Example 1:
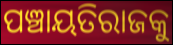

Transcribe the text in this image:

ପଞ୍ଚାୟତିରାଜକୁ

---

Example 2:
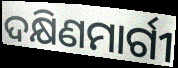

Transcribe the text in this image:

ଦକ୍ଷିଣମାର୍ଗୀ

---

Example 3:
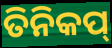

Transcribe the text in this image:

ତିନିକପ୍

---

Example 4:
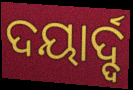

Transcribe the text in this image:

ଦୟାର୍ଦ୍ଦ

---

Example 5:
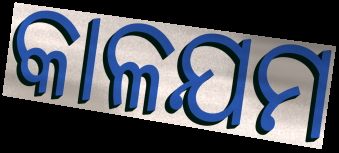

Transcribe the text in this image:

କାଳଯମ